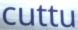
cuttu